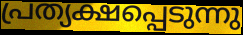
പ്രത്യക്ഷപ്പെടുന്നു